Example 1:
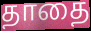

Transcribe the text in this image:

தாதை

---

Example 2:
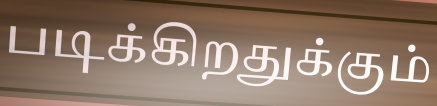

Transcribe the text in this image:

படிக்கிறதுக்கும்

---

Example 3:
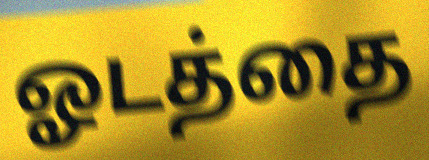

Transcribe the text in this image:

ஓடத்தை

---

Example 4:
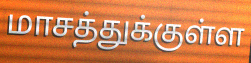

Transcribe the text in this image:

மாசத்துக்குள்ள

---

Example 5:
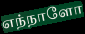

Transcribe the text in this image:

எந்நாளோ